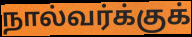
நால்வர்க்குக்